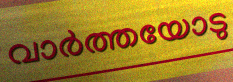
വാർത്തയോടു